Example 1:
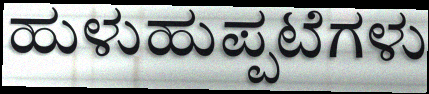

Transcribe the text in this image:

ಹುಳುಹುಪ್ಪಟೆಗಳು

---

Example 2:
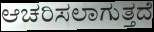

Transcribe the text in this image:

ಆಚರಿಸಲಾಗುತ್ತದೆ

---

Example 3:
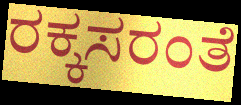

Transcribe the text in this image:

ರಕ್ಕಸರಂತೆ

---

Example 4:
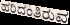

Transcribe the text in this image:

ಹರಿದಂತಿರುವ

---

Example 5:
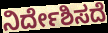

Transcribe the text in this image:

ನಿರ್ದೇಶಿಸದೆ